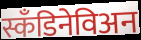
स्कॅंडिनेविअन